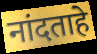
नांदताहे